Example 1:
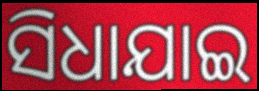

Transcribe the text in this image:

ସିଧାଯାଇ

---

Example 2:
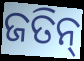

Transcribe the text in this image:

ଜତିନ୍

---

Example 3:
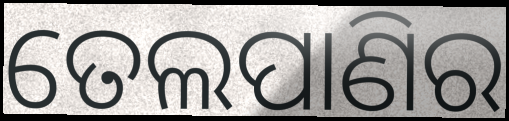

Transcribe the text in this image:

ତେଲପାଣିର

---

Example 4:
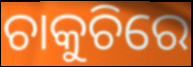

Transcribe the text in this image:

ଚାକୁଚିରେ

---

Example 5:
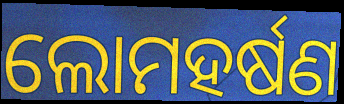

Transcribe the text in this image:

ଲୋମହର୍ଷଣ